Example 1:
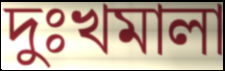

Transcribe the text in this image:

দুঃখমালা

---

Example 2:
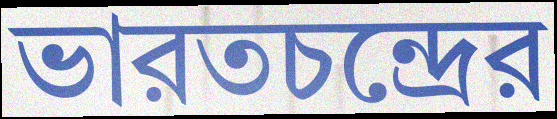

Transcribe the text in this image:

ভারতচন্দ্রের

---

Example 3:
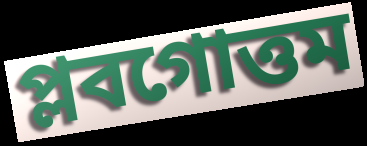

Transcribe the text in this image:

প্লবগোত্তম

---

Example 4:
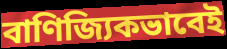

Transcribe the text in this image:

বাণিজ্যিকভাবেই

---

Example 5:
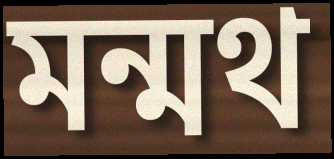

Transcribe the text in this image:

মন্মথ